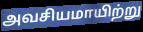
அவசியமாயிற்று